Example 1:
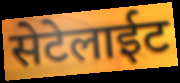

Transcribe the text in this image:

सेटेलाईट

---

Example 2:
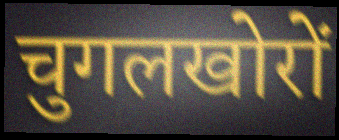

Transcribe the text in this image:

चुगलखोरों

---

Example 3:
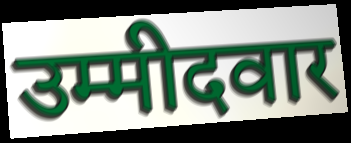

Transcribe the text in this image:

उम्मीदवार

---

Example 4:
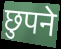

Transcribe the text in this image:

छुपने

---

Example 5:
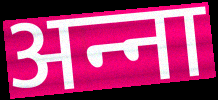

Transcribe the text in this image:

अन्ना